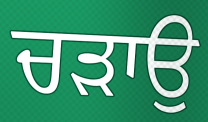
ਚੜਾਉ